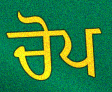
ਚੋਪ